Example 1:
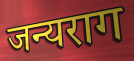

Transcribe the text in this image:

जन्यराग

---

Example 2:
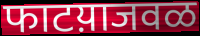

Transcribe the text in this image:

फाटय़ाजवळ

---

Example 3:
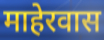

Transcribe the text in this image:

माहेरवास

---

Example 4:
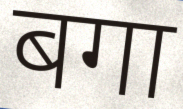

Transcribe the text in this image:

बगा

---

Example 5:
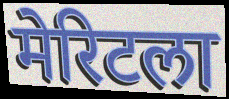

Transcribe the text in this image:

मेरिटला